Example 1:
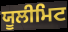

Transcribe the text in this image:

ਯੂਲੀਮਿਟ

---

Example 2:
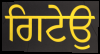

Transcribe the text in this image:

ਗਿਟੇਉ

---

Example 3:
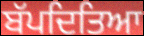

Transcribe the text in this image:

ਬੱਪਦਿਤਿਆ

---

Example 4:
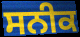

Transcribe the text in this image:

ਸਨੀਕ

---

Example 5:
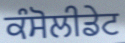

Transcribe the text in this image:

ਕੰਸੋਲੀਡੇਟ